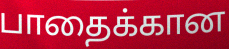
பாதைக்கான